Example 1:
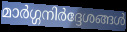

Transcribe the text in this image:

മാർഗ്ഗനിർദ്ദേശങ്ങൾ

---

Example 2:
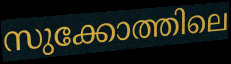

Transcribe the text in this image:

സുക്കോത്തിലെ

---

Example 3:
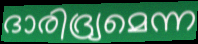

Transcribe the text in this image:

ദാരിദ്ര്യമെന്ന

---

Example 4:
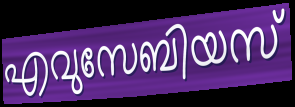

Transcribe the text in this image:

എവുസേബിയസ്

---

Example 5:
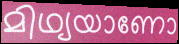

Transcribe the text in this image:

മിഥ്യയാണോ